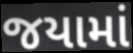
જયામાં